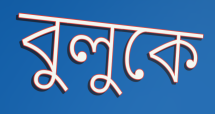
বুলুকে